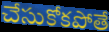
చేసుకోకపోతే